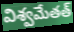
విశ్వమేతత్